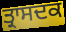
ਤ੍ਰਾਸਦਕ